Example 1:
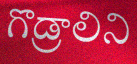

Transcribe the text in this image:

గొడ్రాలిని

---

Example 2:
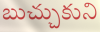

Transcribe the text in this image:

బుచ్చుకుని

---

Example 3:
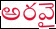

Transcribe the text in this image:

అరవై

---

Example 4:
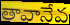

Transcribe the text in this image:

తావానేవ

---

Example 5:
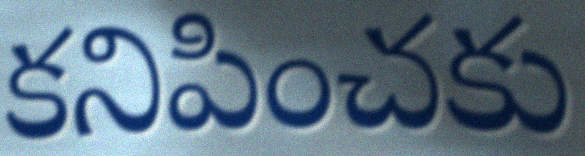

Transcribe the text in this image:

కనిపించకు